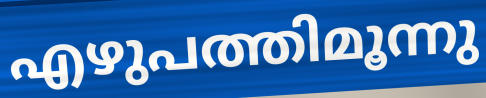
എഴുപത്തിമൂന്നു